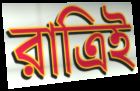
রাত্রিই